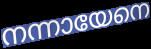
നന്നായേനെ